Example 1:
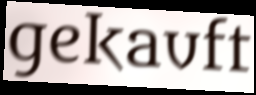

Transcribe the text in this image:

gekauft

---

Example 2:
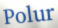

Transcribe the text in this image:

Polur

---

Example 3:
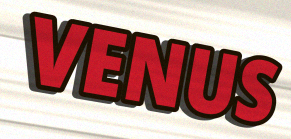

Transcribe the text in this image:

VENUS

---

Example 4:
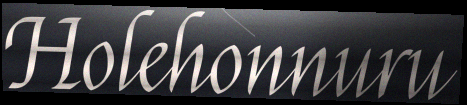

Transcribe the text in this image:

Holehonnuru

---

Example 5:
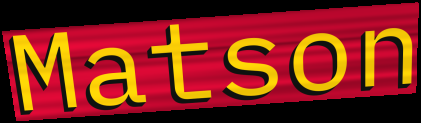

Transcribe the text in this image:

Matson